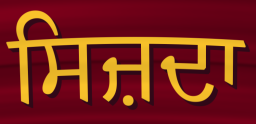
ਸਿਜ਼ਦਾ